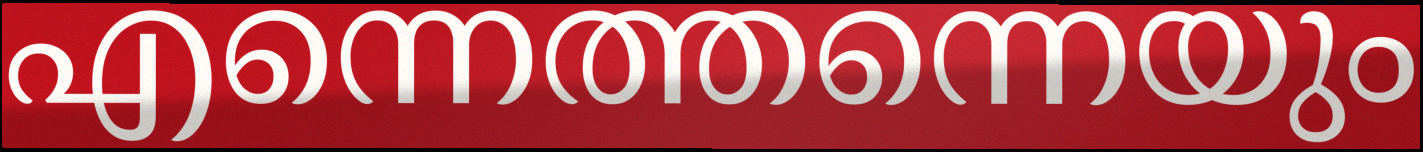
എന്നെത്തന്നെയും